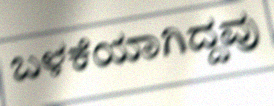
ಬಳಕೆಯಾಗಿದ್ದವು